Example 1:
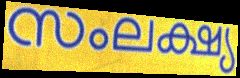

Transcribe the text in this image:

സംലക്ഷ്യ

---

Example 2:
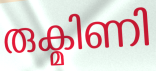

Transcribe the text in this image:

രുക്മിണി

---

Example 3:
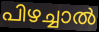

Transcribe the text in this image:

പിഴച്ചാൽ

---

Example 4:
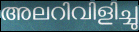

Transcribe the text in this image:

അലറിവിളിച്ചു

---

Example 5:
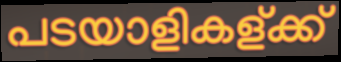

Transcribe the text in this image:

പടയാളികള്ക്ക്